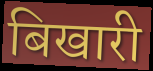
बिखारी